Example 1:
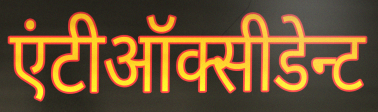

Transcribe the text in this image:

एंटीऑक्सीडेन्ट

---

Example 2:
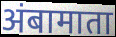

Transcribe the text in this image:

अंबामाता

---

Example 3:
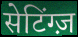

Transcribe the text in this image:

सेटिंग्ज़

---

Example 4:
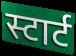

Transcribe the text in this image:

स्टार्ट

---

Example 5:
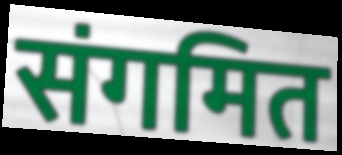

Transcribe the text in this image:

संगमित